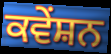
ਕਵੇਂਸ਼ਨ